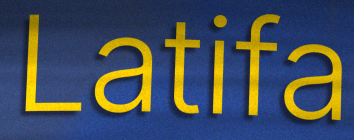
Latifa